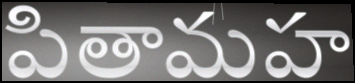
పితామహ